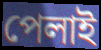
পেলাই